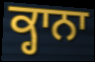
ਕ੍ਹਾਨਾ